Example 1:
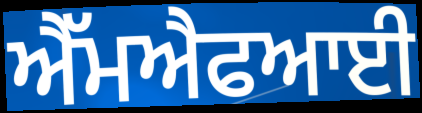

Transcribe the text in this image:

ਐੱਮਐਫਆਈ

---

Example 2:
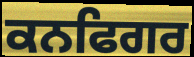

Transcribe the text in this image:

ਕਨਫਿਗਰ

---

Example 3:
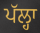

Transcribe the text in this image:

ਪੱਲ੍ਹਾ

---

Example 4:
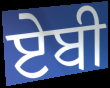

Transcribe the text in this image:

ਏਬੀ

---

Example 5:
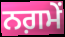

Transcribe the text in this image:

ਨਗ਼ਮੇਂ